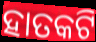
ହାତକଟି